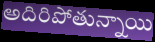
అదిరిపోతున్నాయి